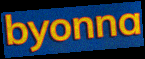
byonna